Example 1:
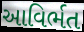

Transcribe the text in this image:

આવિર્ભત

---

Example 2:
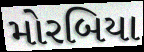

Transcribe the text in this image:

મોરબિયા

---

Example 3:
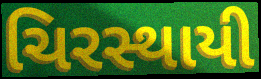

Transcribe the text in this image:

ચિરસ્થાયી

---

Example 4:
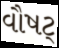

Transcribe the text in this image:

વૌષટ્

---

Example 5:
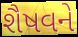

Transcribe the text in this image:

શૈષવને